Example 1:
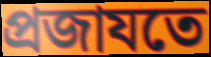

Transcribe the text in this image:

প্রজাযতে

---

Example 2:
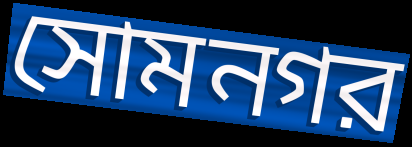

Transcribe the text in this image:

সোমনগর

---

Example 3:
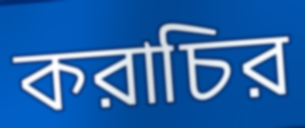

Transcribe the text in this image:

করাচির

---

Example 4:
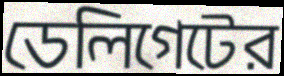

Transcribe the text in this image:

ডেলিগেটের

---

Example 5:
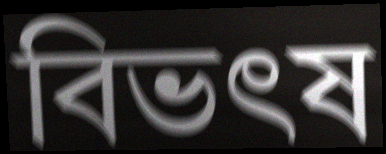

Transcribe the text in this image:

বিভৎষ